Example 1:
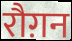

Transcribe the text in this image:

रौग़न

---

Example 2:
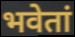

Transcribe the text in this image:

भवेतां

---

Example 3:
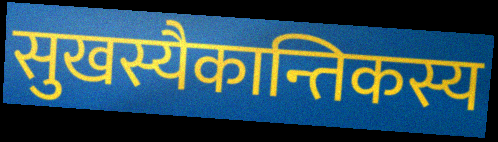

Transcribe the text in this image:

सुखस्यैकान्तिकस्य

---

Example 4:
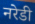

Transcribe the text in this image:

नरेडी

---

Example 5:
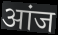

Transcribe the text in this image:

आंज